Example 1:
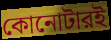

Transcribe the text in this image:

কোনোটারই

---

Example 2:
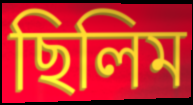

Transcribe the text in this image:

ছিলিম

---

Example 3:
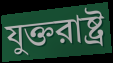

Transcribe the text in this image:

যুক্তরাষ্ট্র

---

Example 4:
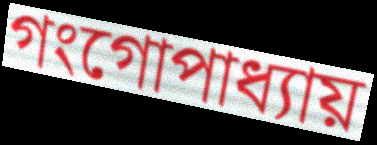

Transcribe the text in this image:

গংগোপাধ্যায়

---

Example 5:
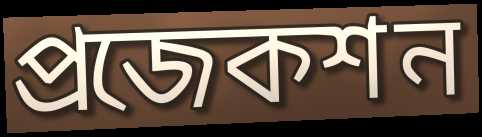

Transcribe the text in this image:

প্রজেকশন